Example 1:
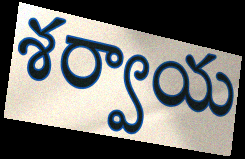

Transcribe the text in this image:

శర్వాయ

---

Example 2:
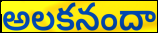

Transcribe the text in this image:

అలకనందా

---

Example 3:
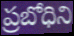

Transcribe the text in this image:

ప్రబోధిని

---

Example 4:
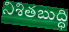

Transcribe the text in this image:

నిశితబుద్ధి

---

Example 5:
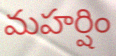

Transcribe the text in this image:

మహర్షిం